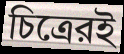
চিত্রেরই